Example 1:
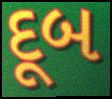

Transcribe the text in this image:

દૂબ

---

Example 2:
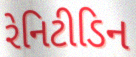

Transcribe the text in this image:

રેનિટીડિન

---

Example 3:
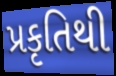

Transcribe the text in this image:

પ્રકૃતિથી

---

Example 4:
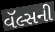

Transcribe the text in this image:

વૅલ્સની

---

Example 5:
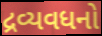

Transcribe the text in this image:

દ્રવ્યવધનો